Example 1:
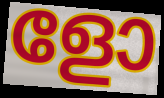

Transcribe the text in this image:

ളോ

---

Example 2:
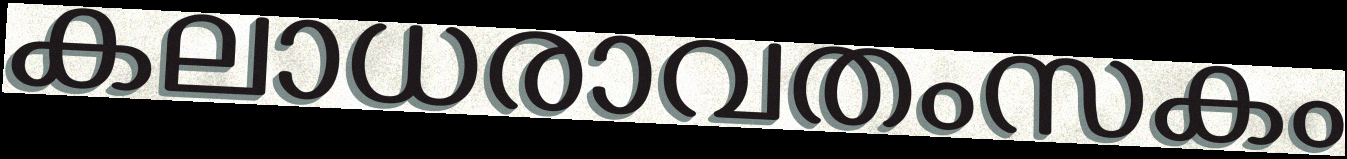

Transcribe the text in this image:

കലാധരാവതംസകം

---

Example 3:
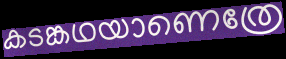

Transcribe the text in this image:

കടങ്കഥയാണെത്രേ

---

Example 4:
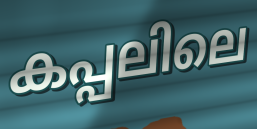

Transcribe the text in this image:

കപ്പലിലെ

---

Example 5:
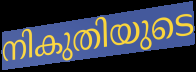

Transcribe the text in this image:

നികുതിയുടെ